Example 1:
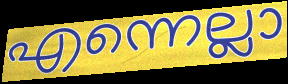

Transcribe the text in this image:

എന്നെല്ലാ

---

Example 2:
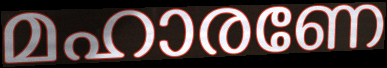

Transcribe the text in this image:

മഹാരണേ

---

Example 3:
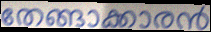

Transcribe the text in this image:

തേങ്ങാക്കാരൻ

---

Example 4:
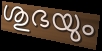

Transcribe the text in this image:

ശുഭയും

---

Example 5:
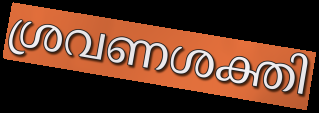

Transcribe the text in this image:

ശ്രവണശക്തി